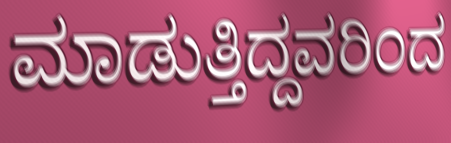
ಮಾಡುತ್ತಿದ್ದವರಿಂದ